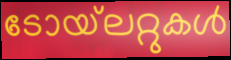
ടോയ്‌ലറ്റുകൾ